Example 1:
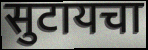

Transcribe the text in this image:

सुटायचा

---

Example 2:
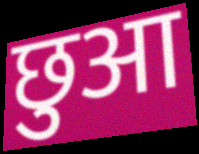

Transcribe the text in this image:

छुआ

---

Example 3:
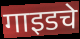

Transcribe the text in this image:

गाइडचे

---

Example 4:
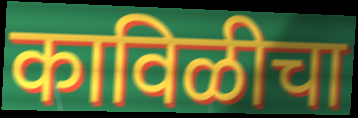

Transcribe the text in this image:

काविळीचा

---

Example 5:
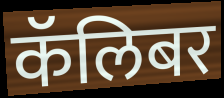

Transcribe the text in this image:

कॅलिबर